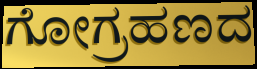
ಗೋಗ್ರಹಣದ